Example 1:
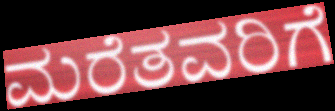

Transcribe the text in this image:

ಮರೆತವರಿಗೆ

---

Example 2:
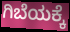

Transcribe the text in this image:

ಗಿಬೆಯಕ್ಕೆ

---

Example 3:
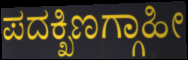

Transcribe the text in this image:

ಪದಕ್ಖಿಣಗ್ಗಾಹೀ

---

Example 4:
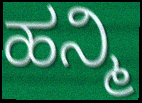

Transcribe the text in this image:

ಹನ್ಮಿ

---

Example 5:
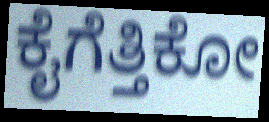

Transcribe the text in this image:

ಕೈಗೆತ್ತಿಕೋ